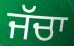
ਜੱਚਾ